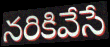
నరికివేసే